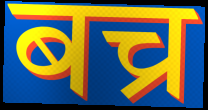
बच्र